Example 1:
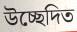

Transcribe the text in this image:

উচ্ছেদিত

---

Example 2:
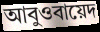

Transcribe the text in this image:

আবুওবায়েদ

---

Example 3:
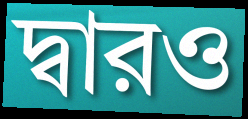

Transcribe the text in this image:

দ্বারও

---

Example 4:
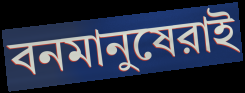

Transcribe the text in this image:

বনমানুষেরাই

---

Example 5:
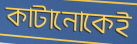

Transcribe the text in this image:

কাটানোকেই